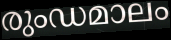
രുംഡമാലം